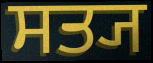
ਸਤ੍ਯ